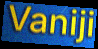
Vaniji